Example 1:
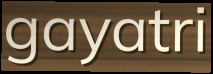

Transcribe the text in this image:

gayatri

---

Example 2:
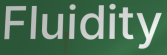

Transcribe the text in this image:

Fluidity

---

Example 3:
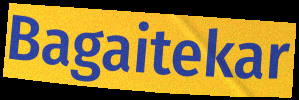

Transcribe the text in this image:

Bagaitekar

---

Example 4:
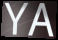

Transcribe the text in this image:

YA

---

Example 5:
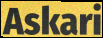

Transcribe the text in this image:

Askari